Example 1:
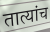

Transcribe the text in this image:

तात्यांच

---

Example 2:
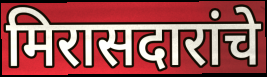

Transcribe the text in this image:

मिरासदारांचे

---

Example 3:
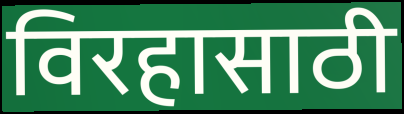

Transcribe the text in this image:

विरहासाठी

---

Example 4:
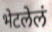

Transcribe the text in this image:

भेटलेलं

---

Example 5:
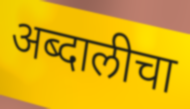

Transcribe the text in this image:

अब्दालीचा